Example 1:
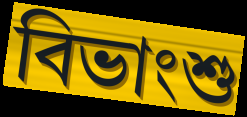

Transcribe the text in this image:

বিভাংশু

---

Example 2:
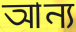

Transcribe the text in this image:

আন্য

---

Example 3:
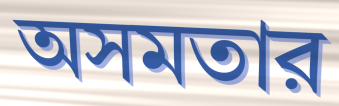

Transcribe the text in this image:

অসমতার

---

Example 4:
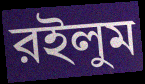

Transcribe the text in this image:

রইলুম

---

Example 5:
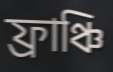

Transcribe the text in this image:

ফ্রাঞ্চি